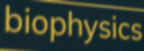
biophysics